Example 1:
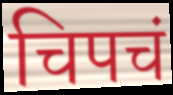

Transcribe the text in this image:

चिपचं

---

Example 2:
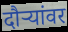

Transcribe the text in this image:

दौर्‍यांवर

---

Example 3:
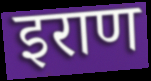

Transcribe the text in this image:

इराण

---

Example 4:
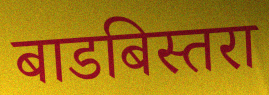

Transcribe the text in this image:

बाडबिस्तरा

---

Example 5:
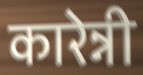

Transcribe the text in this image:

कारेन्नी